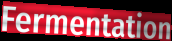
Fermentation